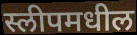
स्लीपमधील